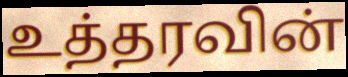
உத்தரவின்